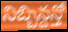
నిబ్బిన్దన్తో